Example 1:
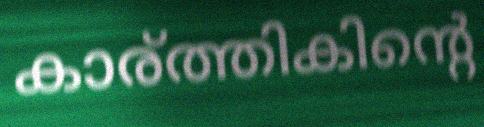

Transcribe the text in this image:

കാര്ത്തികിന്റെ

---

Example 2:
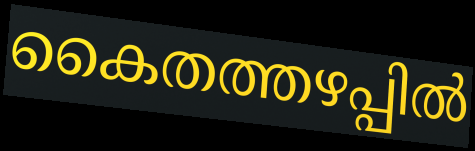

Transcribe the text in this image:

കൈതത്തഴപ്പിൽ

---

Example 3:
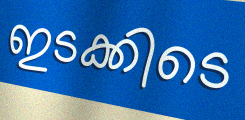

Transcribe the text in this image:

ഇടക്കിടെ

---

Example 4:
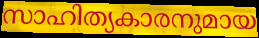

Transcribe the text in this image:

സാഹിത്യകാരനുമായ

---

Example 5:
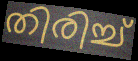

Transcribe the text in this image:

തിരിച്ച്